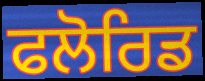
ਫਲੋਰਿਡ